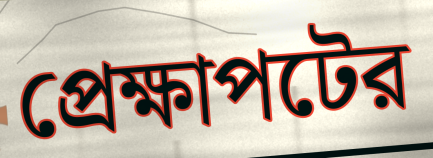
প্রেক্ষাপটের